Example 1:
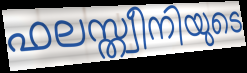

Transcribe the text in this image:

ഫലസ്ത്വീനിയുടെ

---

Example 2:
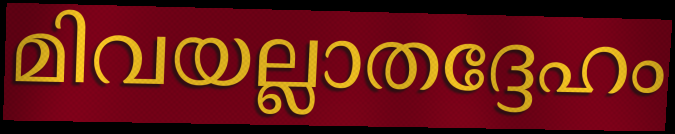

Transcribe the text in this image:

മിവയല്ലാതദ്ദേഹം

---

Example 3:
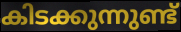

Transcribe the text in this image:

കിടക്കുന്നുണ്ട്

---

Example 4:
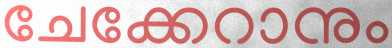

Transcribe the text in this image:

ചേക്കേറാനും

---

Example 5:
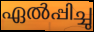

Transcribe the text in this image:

ഏൽപ്പിച്ചു